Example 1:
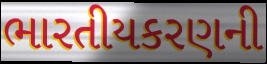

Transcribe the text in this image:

ભારતીયકરણની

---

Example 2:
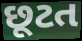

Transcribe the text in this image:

છૂટત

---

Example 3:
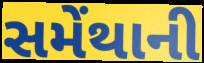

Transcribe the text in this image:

સમેંથાની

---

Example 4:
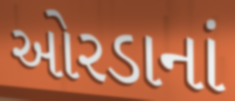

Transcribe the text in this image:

ઓરડાનાં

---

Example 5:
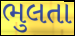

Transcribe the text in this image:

ભુલતા